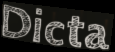
Dicta